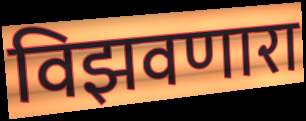
विझवणारा